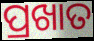
ପ୍ରଖାତ